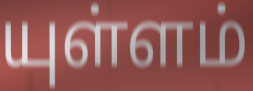
யுள்ளம்